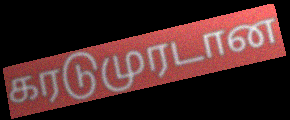
கரடுமுரடான